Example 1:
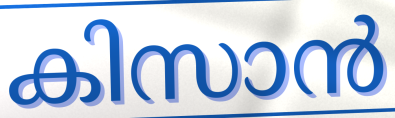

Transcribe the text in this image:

കിസാൻ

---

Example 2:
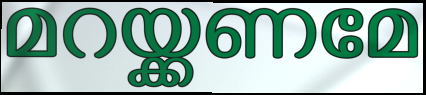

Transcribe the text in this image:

മറയ്ക്കണമേ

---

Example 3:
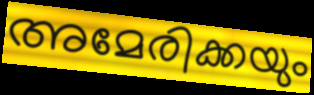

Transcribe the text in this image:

അമേരിക്കയും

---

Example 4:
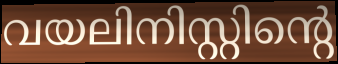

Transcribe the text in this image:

വയലിനിസ്റ്റിന്റെ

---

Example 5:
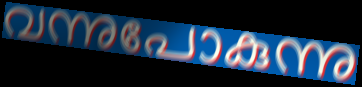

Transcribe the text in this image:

വന്നുപോകുന്നു